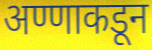
अण्णाकडून